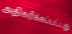
அதிகரிக்கப்பட்டது